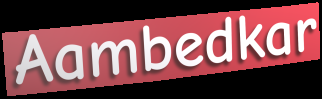
Aambedkar